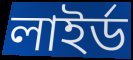
লাইর্ড